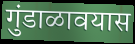
गुंडाळावयास